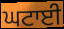
ਘਟਾਈ